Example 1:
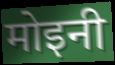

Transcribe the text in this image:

मोइनी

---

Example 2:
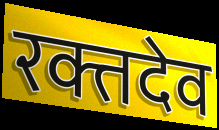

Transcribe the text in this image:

रक्तदेव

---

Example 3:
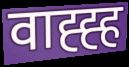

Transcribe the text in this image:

वाह्ह्ह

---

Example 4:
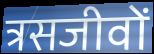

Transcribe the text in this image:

त्रसजीवों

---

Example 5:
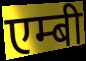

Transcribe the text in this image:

एम्बी